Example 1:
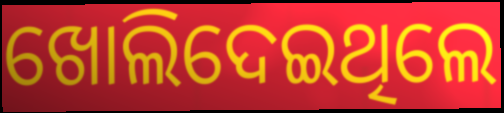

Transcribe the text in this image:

ଖୋଲିଦେଇଥିଲେ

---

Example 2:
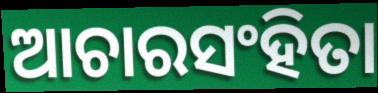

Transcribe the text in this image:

ଆଚାରସଂହିତା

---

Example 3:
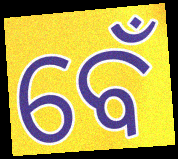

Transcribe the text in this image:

ବେଁ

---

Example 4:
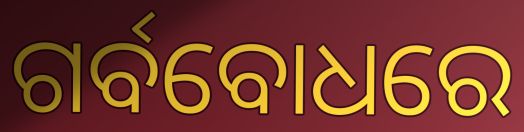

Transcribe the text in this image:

ଗର୍ବବୋଧରେ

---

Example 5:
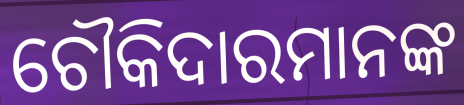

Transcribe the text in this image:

ଚୌକିଦାରମାନଙ୍କ